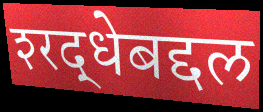
श्रद्धेबद्दल